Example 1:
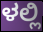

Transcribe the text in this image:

ಳಲ್ಲಿ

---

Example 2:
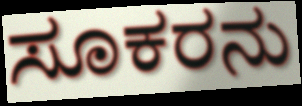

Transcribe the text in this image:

ಸೂಕರನು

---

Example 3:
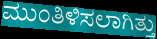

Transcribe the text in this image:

ಮುಂತಿಳಿಸಲಾಗಿತ್ತು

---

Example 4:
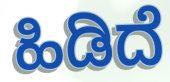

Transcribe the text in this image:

ಹಿಡಿದೆ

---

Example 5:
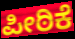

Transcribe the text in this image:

ಪೀಠಿಕೆ